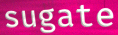
sugate